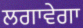
ਲਗਾਵੇਗਾ